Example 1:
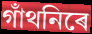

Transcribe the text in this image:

গাঁথনিৰে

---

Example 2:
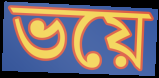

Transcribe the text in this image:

ভয়ে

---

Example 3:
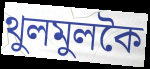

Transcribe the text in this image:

থুলমুলকৈ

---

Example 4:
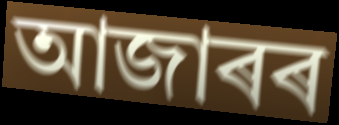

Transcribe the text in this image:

আজাৰৰ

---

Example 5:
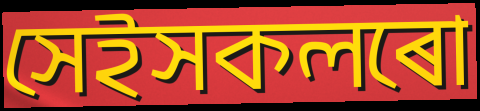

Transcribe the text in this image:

সেইসকলৰো